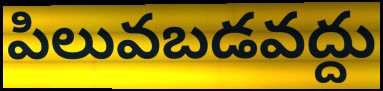
పిలువబడవద్దు